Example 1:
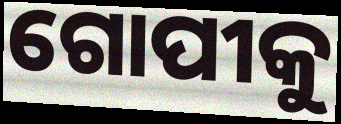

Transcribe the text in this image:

ଗୋପୀକୁ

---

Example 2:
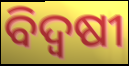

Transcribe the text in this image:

ବିଦ୍ୱଷୀ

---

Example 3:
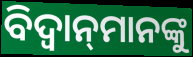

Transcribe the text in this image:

ବିଦ୍ଵାନ୍‌ମାନଙ୍କୁ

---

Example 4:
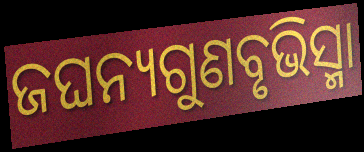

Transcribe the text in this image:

ଜଘନ୍ୟଗୁଣବୃଭିସ୍ମା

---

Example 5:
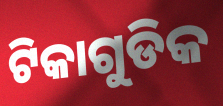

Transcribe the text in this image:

ଟିକାଗୁଡିକ